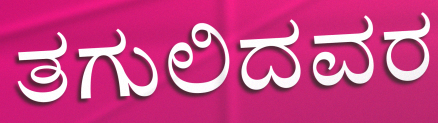
ತಗುಲಿದವರ